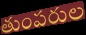
తుంపరుల